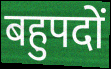
बहुपदों